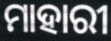
ମାହାରୀ